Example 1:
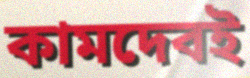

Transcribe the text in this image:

কামদেবই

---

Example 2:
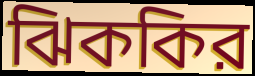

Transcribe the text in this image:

ঝিককির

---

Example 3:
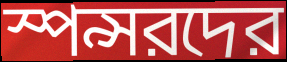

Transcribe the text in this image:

স্পন্সরদের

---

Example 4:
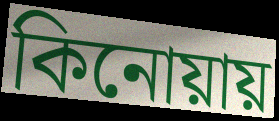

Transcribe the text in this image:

কিনোয়ায়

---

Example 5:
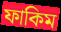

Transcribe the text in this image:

ফাকিম